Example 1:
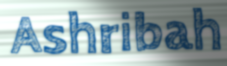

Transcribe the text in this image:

Ashribah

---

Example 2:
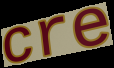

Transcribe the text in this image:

cre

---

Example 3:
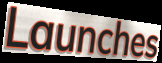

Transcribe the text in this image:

Launches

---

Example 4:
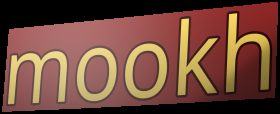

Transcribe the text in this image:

mookh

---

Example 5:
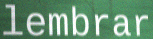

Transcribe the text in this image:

lembrar